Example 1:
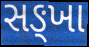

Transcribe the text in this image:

સઙ્ખા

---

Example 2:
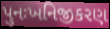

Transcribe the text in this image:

પુનઃખનિજીકરણ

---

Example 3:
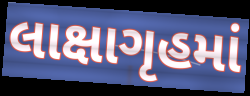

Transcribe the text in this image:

લાક્ષાગૃહમાં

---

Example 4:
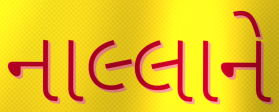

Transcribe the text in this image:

નાલ્લાને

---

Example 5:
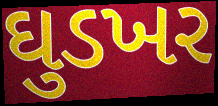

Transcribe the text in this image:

ઘુડખર